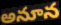
అనూన